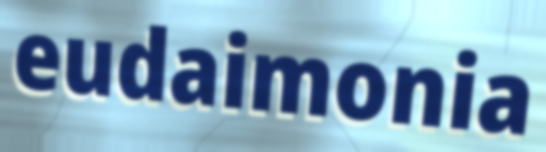
eudaimonia